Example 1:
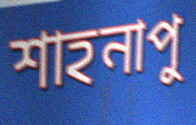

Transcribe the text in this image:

শাহনাপু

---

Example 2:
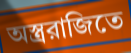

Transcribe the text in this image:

অস্ত্ররাজিতে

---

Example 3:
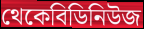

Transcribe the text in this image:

থেকেবিডিনিউজ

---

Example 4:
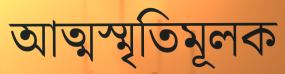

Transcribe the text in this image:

আত্মস্মৃতিমূলক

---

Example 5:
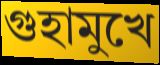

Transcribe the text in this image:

গুহামুখে